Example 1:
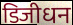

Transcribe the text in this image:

डिजीधन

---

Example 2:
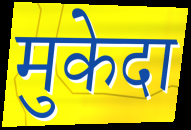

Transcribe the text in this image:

मुकेदा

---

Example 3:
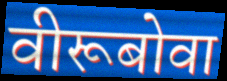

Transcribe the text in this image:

वीरूबोवा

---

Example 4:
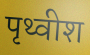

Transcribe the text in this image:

पृथ्वीश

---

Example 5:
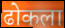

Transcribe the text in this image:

ढोकला